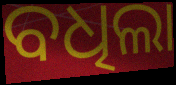
ବଧିଲା